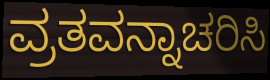
ವ್ರತವನ್ನಾಚರಿಸಿ